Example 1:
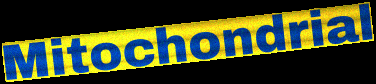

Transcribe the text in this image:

Mitochondrial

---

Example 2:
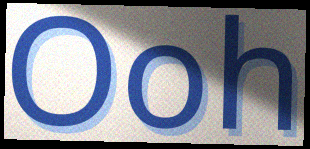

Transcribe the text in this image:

Ooh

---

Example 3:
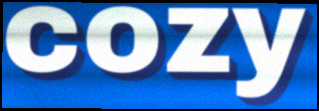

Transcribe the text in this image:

cozy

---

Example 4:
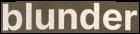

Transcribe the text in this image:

blunder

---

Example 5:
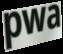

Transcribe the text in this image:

pwa